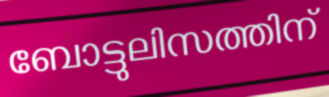
ബോട്ടുലിസത്തിന്